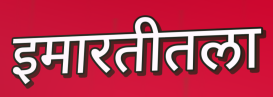
इमारतीतला